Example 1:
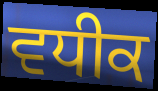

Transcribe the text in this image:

ਵਧੀਕ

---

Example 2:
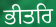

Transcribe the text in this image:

ਭੀਤਰਿ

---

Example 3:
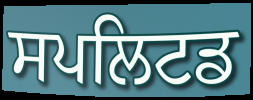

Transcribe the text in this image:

ਸਪਲਿਟਡ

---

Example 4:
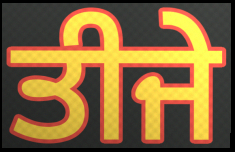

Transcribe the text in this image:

ਤੀਜੇ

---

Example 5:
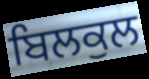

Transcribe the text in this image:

ਬਿਲਕੁਲ